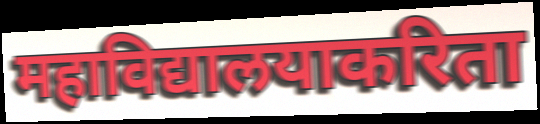
महाविद्यालयाकरिता